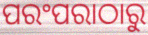
ପରଂପରାଠାରୁ